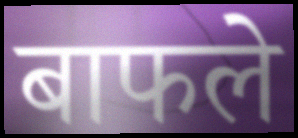
बाफले